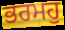
ਭਰਮਹੁ